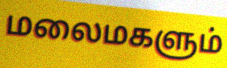
மலைமகளும்